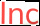
Inc